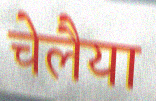
चेलैया